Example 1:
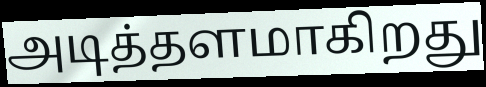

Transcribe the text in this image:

அடித்தளமாகிறது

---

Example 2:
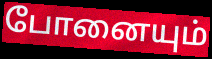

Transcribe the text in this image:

போனையும்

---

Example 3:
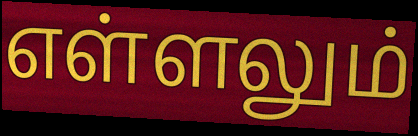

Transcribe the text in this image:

எள்ளலும்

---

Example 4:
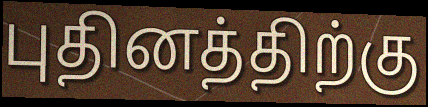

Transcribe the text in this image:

புதினத்திற்கு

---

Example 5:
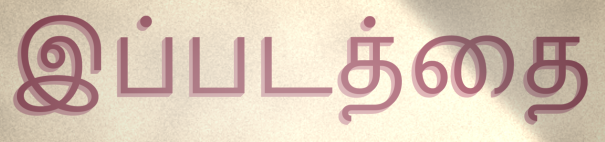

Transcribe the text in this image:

இப்படத்தை